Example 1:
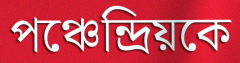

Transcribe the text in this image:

পঞ্চেন্দ্রিয়কে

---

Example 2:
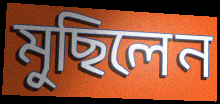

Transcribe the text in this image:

মুছিলেন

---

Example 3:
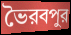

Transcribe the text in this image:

ভৈরবপুর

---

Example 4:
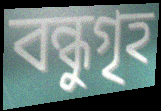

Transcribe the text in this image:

বন্ধুগৃহ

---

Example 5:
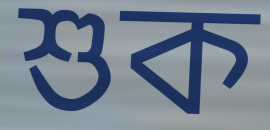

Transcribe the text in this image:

শুক